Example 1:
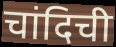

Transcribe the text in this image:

चांदिची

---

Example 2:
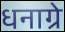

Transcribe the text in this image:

धनाग्रे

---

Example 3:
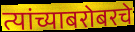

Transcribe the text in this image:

त्यांच्याबरोबरचे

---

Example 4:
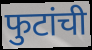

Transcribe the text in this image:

फुटांची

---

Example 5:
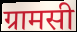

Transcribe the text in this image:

ग्रामसी